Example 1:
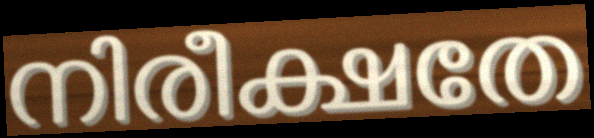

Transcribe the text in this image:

നിരീക്ഷതേ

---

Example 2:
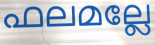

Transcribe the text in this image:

ഫലമല്ലേ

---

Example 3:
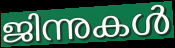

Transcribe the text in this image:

ജിന്നുകൾ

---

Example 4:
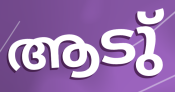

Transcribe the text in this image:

ആടു്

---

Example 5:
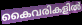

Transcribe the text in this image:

കൈവരികളിൽ